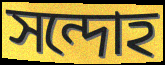
সন্দোহ